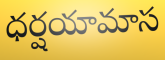
ధర్షయామాస